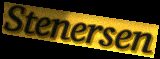
Stenersen